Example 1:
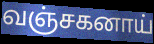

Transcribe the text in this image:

வஞ்சகனாய்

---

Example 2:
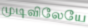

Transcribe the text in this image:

முடிவிலேயே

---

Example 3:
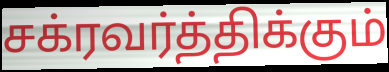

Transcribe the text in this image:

சக்ரவர்த்திக்கும்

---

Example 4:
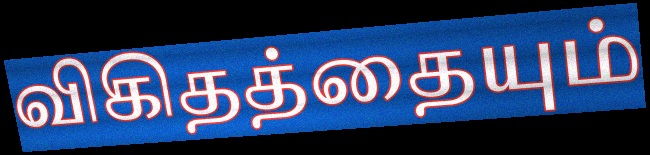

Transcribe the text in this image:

விகிதத்தையும்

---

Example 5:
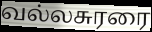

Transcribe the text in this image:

வல்லசுரரை